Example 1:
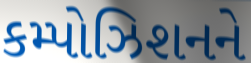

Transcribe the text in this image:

કમ્પોઝિશનને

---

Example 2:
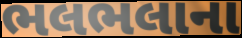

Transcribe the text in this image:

ભલભલાના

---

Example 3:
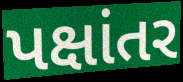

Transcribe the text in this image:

પક્ષાંતર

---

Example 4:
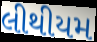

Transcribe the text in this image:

લીથીયમ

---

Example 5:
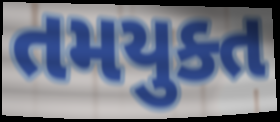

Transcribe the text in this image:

તમયુક્ત